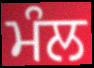
ਮੰਲ